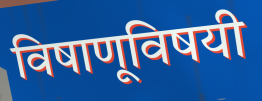
विषाणूविषयी